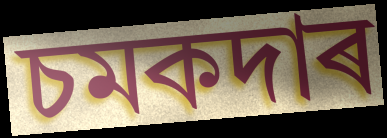
চমকদাৰ